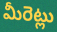
మీరెట్లు